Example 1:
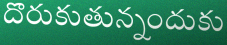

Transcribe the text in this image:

దొరుకుతున్నందుకు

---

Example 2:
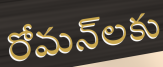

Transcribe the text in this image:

రోమన్‌లకు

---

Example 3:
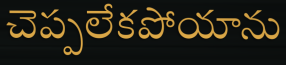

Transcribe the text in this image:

చెప్పలేకపోయాను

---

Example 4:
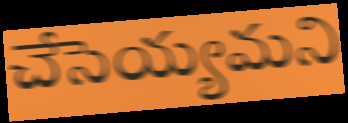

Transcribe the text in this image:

చేసెయ్యమని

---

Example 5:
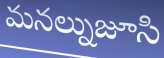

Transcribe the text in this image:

మనల్నుజూసి